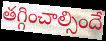
తగ్గించాల్సిందే